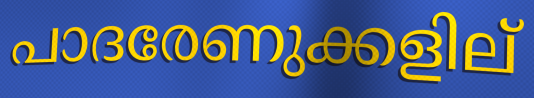
പാദരേണുക്കളില്